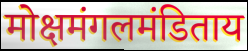
मोक्षमंगलमंडिताय